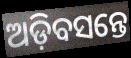
ଅଡ଼ିବସନ୍ତେ